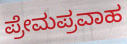
ಪ್ರೇಮಪ್ರವಾಹ